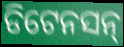
ଡିଟେନସନ୍